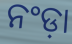
ନଂଡ଼ା